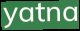
yatna